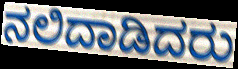
ನಲಿದಾಡಿದರು